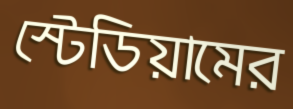
স্টেডিয়ামের